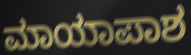
ಮಾಯಾಪಾಶ